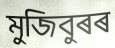
মুজিবুৰৰ